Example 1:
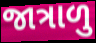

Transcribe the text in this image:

જાત્રાળુ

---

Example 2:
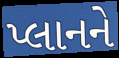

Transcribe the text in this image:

પ્લાનને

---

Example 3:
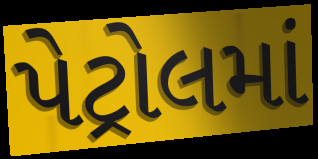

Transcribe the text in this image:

પેટ્રોલમાં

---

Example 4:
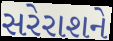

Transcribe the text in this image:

સરેરાશને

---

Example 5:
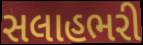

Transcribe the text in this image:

સલાહભરી